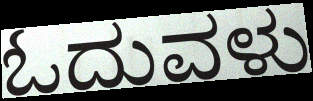
ಓದುವಳು